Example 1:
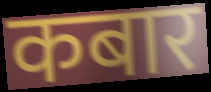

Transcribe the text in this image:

कबार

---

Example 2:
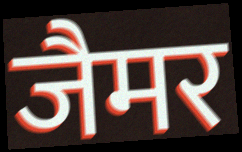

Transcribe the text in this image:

जैमर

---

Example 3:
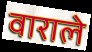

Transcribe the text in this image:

वाराले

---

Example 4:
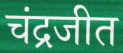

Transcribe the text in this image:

चंद्रजीत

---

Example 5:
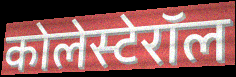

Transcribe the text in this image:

कोलेस्टेरॉल